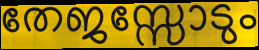
തേജസ്സോടും